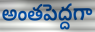
అంతపెద్దగా